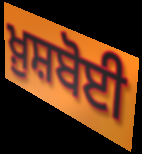
ਖ਼ੁਸ਼ਬੋਈ